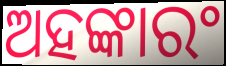
ଅହଙ୍କାରଂ